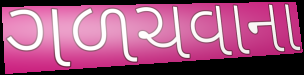
ગળચવાના